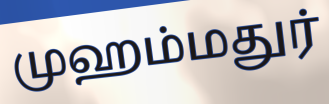
முஹம்மதுர்